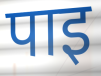
पाइ